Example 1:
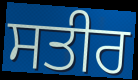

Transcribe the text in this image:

ਸਤੀਰ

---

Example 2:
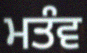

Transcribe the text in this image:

ਮਤੰਵ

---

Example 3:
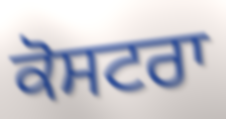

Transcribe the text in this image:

ਕੋਸਟਰਾ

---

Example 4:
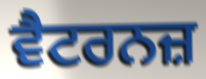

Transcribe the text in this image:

ਵੈਟਰਨਜ਼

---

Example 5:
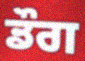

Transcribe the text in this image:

ਡੌਗ